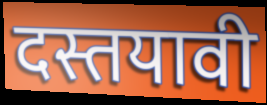
दस्तयावी